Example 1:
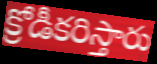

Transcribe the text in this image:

క్రోడీకరిస్తారు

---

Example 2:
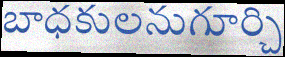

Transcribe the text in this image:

బాధకులనుగూర్చి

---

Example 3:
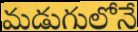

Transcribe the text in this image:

మడుగులోనే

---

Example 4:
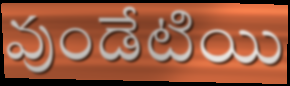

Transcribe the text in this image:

వుండేటియి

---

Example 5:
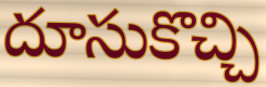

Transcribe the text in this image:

దూసుకొచ్చి